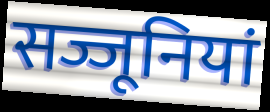
सज्जूनियां